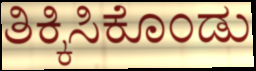
ತಿಕ್ಕಿಸಿಕೊಂಡು